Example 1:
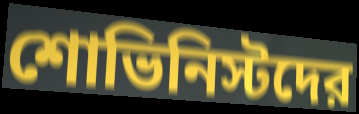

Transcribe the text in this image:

শোভিনিস্টদের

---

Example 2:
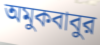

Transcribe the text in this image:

অমুকবাবুর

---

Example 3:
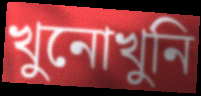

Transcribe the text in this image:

খুনোখুনি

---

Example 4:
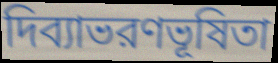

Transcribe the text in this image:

দিব্যাভরণভূষিতা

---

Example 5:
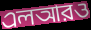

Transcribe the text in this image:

এলআরও